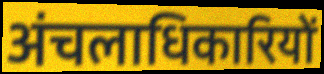
अंचलाधिकारियों